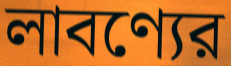
লাবণ্যের